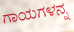
ಗಾಯಗಳನ್ನ